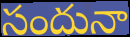
సందునా